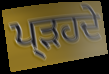
ਪ੍ੜਹਦੇ